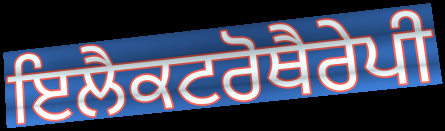
ਇਲੈਕਟਰੋਥੈਰੇਪੀ